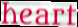
heart